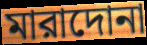
মারাদোনা